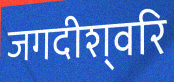
जगदीश्वरि